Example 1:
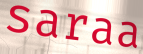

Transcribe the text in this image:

saraa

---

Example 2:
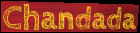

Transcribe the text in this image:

Chandada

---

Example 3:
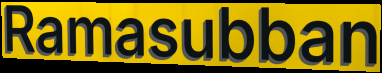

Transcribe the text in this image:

Ramasubban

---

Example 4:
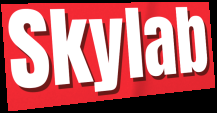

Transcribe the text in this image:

Skylab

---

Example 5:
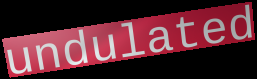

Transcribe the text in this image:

undulated